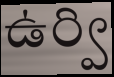
ఉర్వి